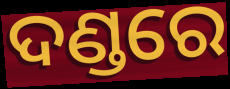
ଦଣ୍ଡରେ